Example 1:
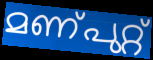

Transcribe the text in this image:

മണ്പുറ്റ്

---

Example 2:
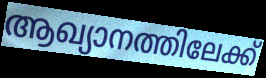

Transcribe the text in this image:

ആഖ്യാനത്തിലേക്ക്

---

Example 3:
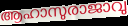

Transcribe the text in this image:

ആഹാസുരാജാവു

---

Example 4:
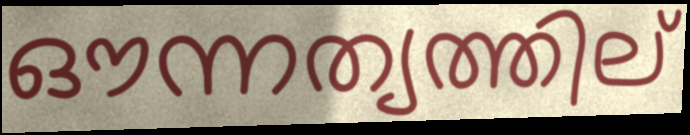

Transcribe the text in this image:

ഔന്നത്യത്തില്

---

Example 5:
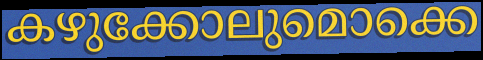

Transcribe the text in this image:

കഴുക്കോലുമൊക്കെ